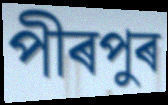
পীৰপুৰ